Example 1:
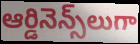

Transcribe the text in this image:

ఆర్డినెన్స్‌లుగా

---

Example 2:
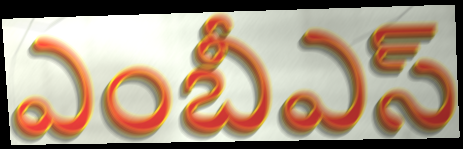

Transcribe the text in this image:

ఎంబీఎస్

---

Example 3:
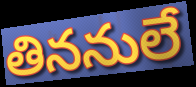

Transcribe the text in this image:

తిననులే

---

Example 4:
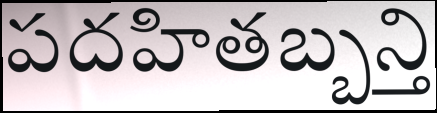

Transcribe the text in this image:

పదహితబ్బన్తి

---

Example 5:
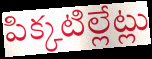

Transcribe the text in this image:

పిక్కటిల్లేట్లు